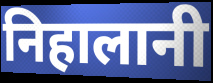
निहालानी